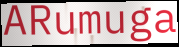
ARumuga